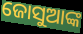
ଜୋସୁଆଙ୍କ